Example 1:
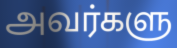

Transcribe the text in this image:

அவர்களு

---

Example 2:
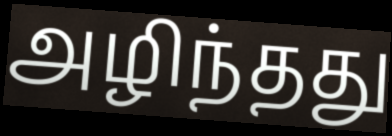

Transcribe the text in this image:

அழிந்தது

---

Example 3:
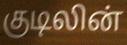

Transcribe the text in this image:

குடிலின்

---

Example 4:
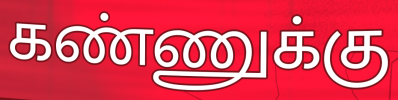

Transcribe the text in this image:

கண்ணுக்கு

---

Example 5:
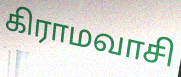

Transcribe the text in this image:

கிராமவாசி